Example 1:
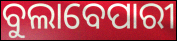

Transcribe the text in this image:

ବୁଲାବେପାରୀ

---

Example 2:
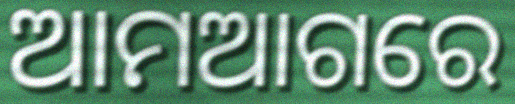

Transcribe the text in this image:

ଆମଆଗରେ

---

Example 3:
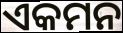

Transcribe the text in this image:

ଏକମନ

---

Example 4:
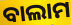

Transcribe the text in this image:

ବାଲାମ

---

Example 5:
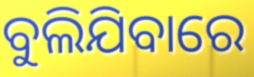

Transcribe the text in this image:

ବୁଲିଯିବାରେ